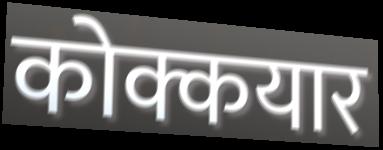
कोक्कयार